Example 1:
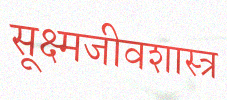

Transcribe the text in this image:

सूक्ष्मजीवशास्त्र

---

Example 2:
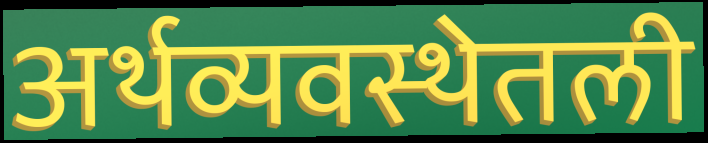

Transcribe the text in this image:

अर्थव्यवस्थेतली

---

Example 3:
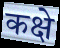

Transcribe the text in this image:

कक्षे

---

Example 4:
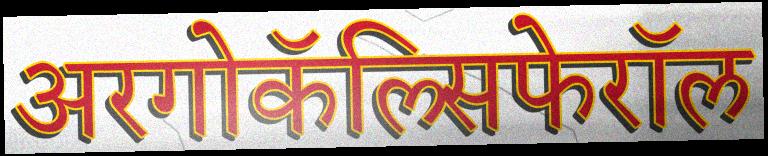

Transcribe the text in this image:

अरगोकॅल्सिफेरॉल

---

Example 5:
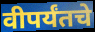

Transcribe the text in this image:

वीपर्यंतचे